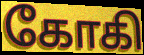
கோகி